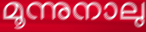
മൂന്നുനാലു